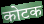
कोटक